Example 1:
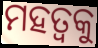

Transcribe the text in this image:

ମହତ୍ଵକୁ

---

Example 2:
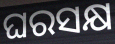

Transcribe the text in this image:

ଘରସକ୍ଷ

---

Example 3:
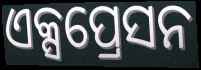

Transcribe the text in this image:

ଏକ୍ସପ୍ରେସନ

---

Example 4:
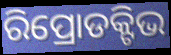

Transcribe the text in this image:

ରିପ୍ରୋଡକ୍ଟିଭ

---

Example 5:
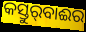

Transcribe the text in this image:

କସ୍ତୁର୍‍ବାଈର